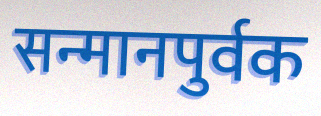
सन्मानपुर्वक